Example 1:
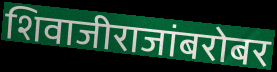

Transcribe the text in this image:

शिवाजीराजांबरोबर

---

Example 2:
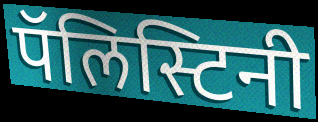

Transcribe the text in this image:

पॅलिस्टिनी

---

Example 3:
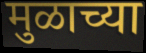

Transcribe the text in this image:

मुळाच्या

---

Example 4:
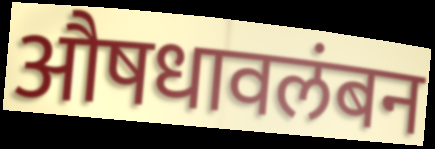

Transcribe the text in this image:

औषधावलंबन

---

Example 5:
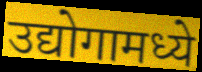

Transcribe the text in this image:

उद्योगामध्ये